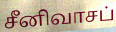
சீனிவாசப்